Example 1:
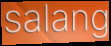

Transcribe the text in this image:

salang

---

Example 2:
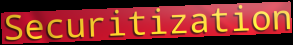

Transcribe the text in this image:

Securitization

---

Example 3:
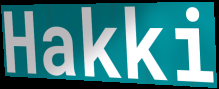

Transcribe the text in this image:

Hakki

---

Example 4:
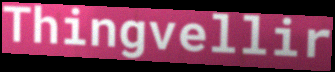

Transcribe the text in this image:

Thingvellir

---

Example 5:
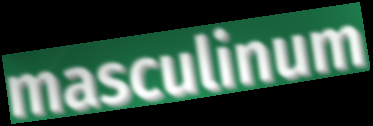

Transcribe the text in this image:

masculinum